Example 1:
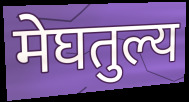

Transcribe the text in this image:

मेघतुल्य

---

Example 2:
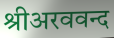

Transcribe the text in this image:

श्रीअरववन्द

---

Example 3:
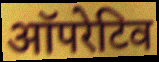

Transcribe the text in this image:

ऑपरेटिव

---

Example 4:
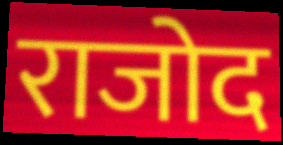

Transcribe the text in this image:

राजोद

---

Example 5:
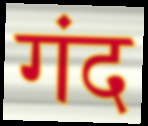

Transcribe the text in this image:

गंद